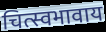
चित्स्वभावाय